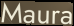
Maura